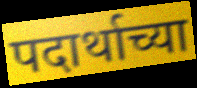
पदार्थाच्या